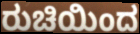
ರುಚಿಯಿಂದ